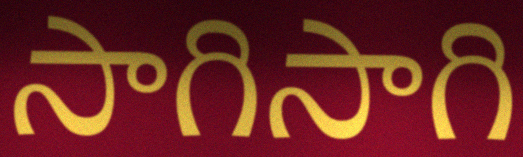
సాగిసాగి